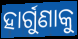
ହାର୍ଗୁଣାକୁ